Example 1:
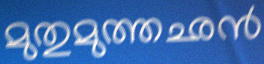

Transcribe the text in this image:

മുതുമുത്തഛൻ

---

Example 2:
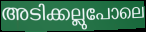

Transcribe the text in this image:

അടിക്കല്ലുപോലെ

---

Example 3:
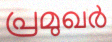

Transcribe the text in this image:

പ്രമുഖർ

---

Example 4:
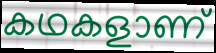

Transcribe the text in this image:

കഥകളാണ്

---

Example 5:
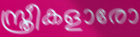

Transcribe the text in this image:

സ്ത്രീകളാരോ